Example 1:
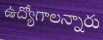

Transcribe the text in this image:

ఉద్యోగాలన్నారు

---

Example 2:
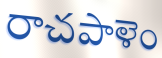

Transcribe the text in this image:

రాచపాళెం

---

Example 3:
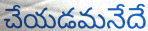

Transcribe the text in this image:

చేయడమనేదే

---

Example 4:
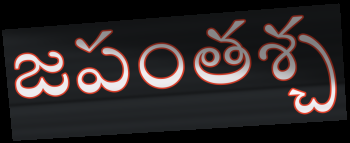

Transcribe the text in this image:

జపంతశ్చ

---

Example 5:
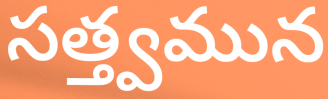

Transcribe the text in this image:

సత్త్వమున